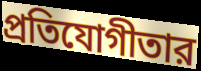
প্রতিযোগীতার